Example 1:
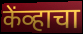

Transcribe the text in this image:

केंव्हाचा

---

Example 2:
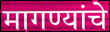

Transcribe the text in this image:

मागण्यांचे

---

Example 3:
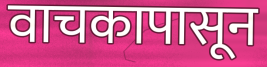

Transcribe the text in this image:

वाचकापासून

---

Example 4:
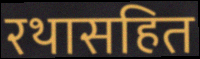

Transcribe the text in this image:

रथासहित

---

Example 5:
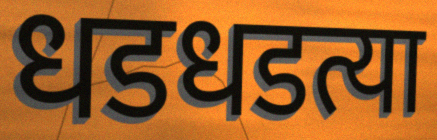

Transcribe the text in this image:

धडधडत्या